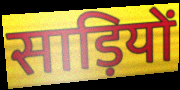
साड़ियों